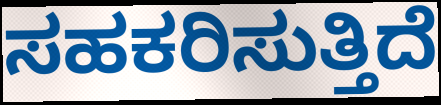
ಸಹಕರಿಸುತ್ತಿದೆ